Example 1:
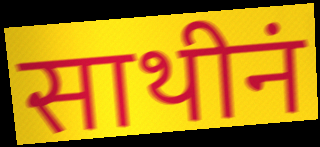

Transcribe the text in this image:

साथीनं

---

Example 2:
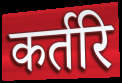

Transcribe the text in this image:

कर्तरि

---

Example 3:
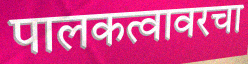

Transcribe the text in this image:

पालकत्वावरचा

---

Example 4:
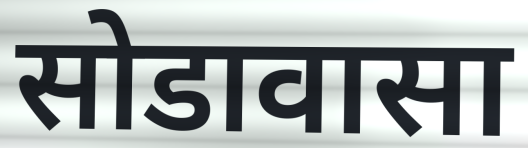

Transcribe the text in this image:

सोडावासा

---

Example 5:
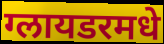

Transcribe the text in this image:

ग्लायडरमधे